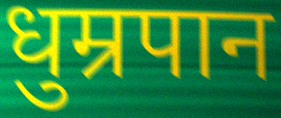
धुम्रपान